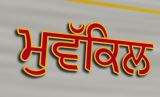
ਮੁਵੱਕਿਲ